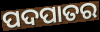
ପଦପାତର